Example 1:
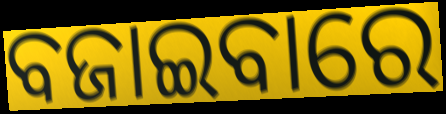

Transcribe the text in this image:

ବଜାଇବାରେ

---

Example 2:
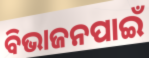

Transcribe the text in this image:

ବିଭାଜନପାଇଁ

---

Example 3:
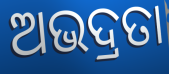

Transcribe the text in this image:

ଅଭଦ୍ରତା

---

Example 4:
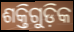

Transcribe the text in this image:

ଶକ୍ତିଗୁଡ଼ିକ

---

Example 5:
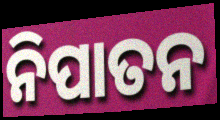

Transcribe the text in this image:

ନିପାତନ